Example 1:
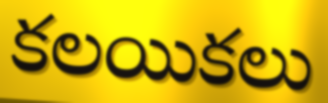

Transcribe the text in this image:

కలయికలు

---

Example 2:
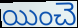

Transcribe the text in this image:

యించె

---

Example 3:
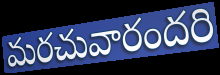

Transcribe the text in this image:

మరచువారందరి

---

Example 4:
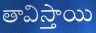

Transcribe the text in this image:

తావిస్తాయి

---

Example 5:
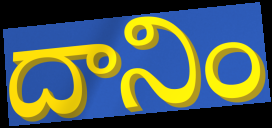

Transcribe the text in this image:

దానిం